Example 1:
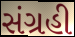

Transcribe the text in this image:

સંગ્રહી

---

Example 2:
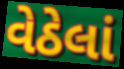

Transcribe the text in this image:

વેઠેલાં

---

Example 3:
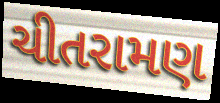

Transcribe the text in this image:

ચીતરામણ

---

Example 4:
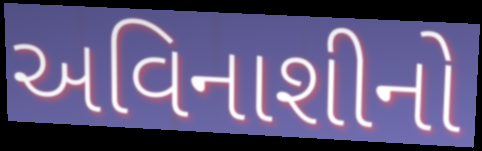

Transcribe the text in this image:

અવિનાશીનો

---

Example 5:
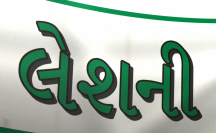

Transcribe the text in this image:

લેશની